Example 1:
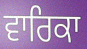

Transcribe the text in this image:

ਵਾਰਿਕਾ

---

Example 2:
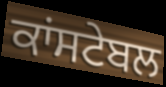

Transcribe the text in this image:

ਕਾਂਸਟੇਬਲ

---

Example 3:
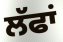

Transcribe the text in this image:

ਲੱਫਾਂ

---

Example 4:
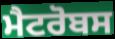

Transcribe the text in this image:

ਮੈਟਰੋਬਸ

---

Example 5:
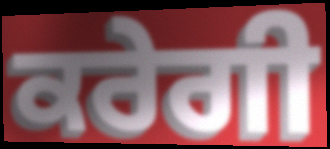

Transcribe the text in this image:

ਕਰੇਗੀ